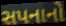
સપનાનો